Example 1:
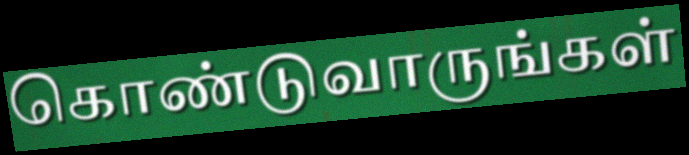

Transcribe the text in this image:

கொண்டுவாருங்கள்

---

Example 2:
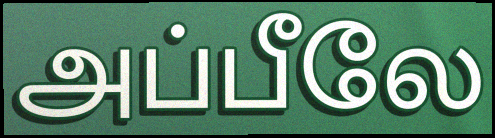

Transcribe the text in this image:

அப்பீலே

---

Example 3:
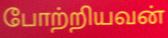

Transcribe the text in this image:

போற்றியவன்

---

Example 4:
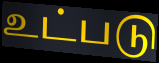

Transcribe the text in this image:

உட்படு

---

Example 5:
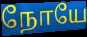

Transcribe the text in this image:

நோயே